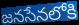
జనసేనలోకి